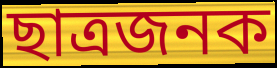
ছাত্ৰজনক